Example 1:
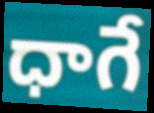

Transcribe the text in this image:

ధాగే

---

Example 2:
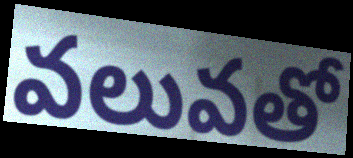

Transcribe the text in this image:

వలువతో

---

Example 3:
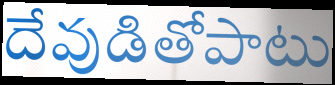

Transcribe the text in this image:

దేవుడితోపాటు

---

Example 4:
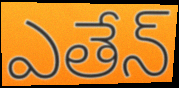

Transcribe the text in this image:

ఎతేన్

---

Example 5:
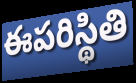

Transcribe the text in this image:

ఈపరిస్థితి